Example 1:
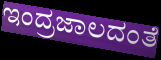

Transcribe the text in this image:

ಇಂದ್ರಜಾಲದಂತೆ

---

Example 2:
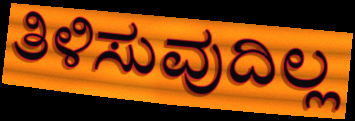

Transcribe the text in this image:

ತಿಳಿಸುವುದಿಲ್ಲ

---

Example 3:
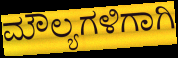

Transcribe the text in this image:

ಮೌಲ್ಯಗಳಿಗಾಗಿ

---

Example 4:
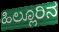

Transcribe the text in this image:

ಹಿಲ್ಲೂರಿನ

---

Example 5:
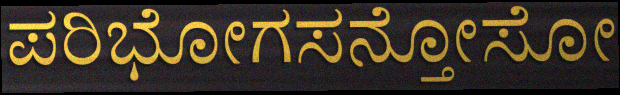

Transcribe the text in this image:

ಪರಿಭೋಗಸನ್ತೋಸೋ